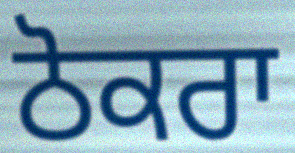
ਠੋਕਰਾ